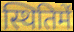
स्थितिमें